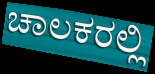
ಚಾಲಕರಲ್ಲಿ